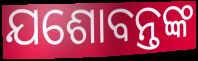
ଯଶୋବନ୍ତଙ୍କ